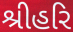
શ્રીહરિ